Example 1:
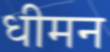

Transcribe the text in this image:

धीमन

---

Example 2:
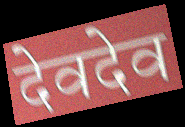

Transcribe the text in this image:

देवदेव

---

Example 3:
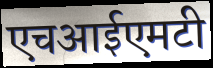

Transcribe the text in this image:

एचआईएमटी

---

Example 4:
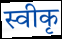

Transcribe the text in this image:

स्वीकृ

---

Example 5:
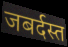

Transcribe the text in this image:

जबर्दस्त